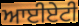
ਆਈਏਟੀ